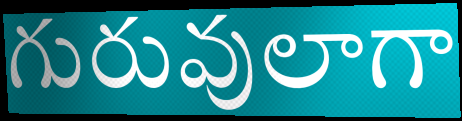
గురువులాగా